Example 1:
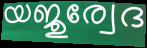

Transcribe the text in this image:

യജുര്വേദ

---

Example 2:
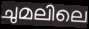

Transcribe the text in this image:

ചുമലിലെ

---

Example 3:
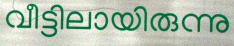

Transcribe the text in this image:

വീട്ടിലായിരുന്നു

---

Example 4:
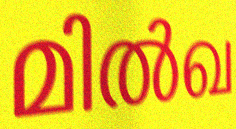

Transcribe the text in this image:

മിൽഖ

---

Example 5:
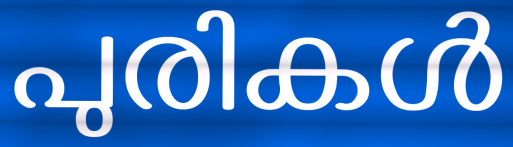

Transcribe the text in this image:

പുരികൾ